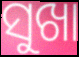
ସୁଖା